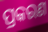
ପ୍ରକରଣ